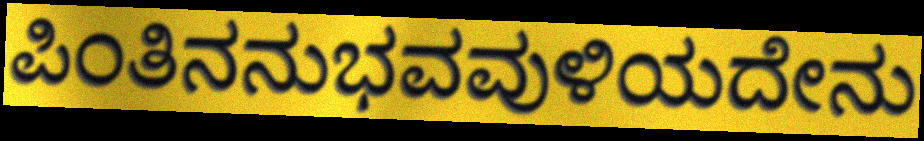
ಪಿಂತಿನನುಭವವುಳಿಯದೇನು